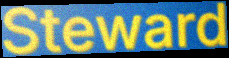
Steward